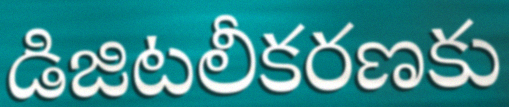
డిజిటలీకరణకు